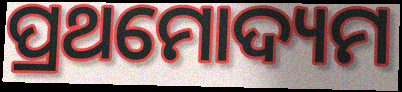
ପ୍ରଥମୋଦ୍ୟମ